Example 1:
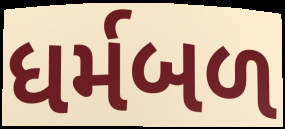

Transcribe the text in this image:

ધર્મબળ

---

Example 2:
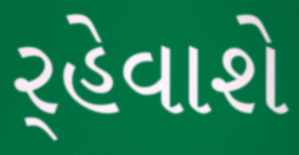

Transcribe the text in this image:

ર્‌હેવાશે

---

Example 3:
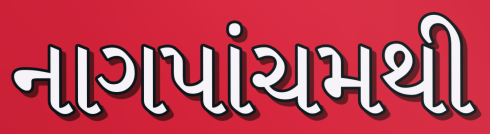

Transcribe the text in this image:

નાગપાંચમથી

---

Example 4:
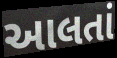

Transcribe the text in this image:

આલતાં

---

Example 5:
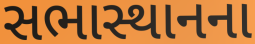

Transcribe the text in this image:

સભાસ્થાનના